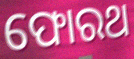
ଫୋରଥ